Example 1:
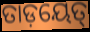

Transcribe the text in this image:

ତାଡ଼ୟେତ୍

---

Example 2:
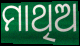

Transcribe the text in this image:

ମାଥିଅ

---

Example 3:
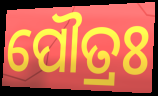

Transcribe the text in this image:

ପୌତ୍ରଃ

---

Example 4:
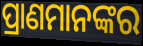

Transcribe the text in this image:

ପ୍ରାଣମାନଙ୍କର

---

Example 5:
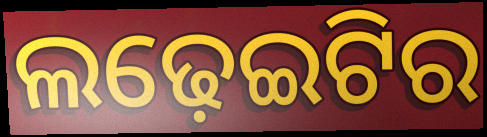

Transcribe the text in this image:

ଲଢ଼େଇଟିର